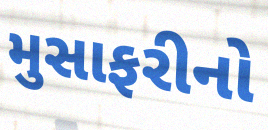
મુસાફરીનો